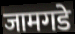
जामगडे